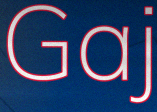
Gaj